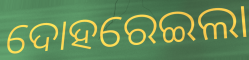
ଦୋହରେଇଲା